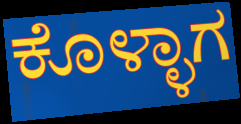
ಕೊಳ್ಳಾಗ